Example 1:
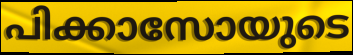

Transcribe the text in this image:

പിക്കാസോയുടെ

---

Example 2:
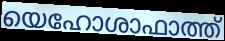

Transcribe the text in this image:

യെഹോശാഫാത്ത്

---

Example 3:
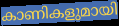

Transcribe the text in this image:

കാണികളുമായി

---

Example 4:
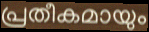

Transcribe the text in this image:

പ്രതീകമായും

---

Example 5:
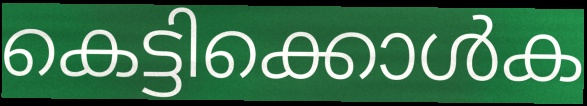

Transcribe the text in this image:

കെട്ടിക്കൊൾക